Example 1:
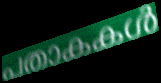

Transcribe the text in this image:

പതാകകൾ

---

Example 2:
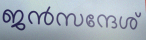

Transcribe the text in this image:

ജൻസന്ദേശ്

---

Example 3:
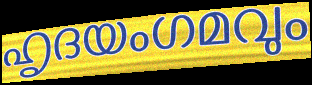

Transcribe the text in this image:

ഹൃദയംഗമവും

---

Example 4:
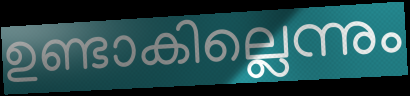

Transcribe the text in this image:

ഉണ്ടാകില്ലെന്നും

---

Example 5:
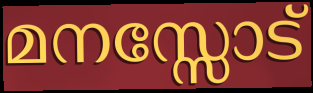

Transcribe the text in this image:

മനസ്സോട്